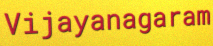
Vijayanagaram